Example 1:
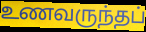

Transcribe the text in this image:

உணவருந்தப்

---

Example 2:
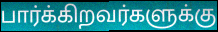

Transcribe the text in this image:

பார்க்கிறவர்களுக்கு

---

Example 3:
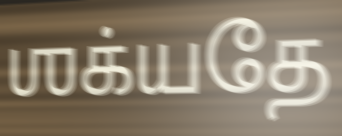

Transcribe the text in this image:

ஶக்யதே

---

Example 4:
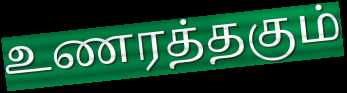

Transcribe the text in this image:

உணரத்தகும்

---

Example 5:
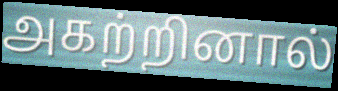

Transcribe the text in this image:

அகற்றினால்